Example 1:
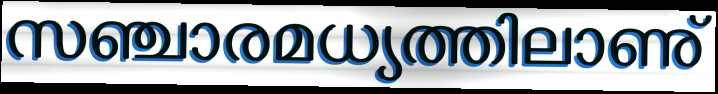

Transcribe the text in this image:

സഞ്ചാരമധ്യത്തിലാണു്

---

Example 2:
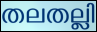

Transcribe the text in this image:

തലതല്ലി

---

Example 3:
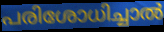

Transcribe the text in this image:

പരിശോധിച്ചാൽ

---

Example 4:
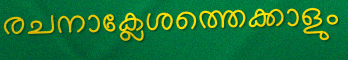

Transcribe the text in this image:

രചനാക്ലേശത്തെക്കാളും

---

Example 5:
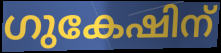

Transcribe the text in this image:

ഗുകേഷിന്